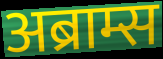
अब्राम्स